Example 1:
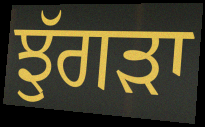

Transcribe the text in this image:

ਝੁੱਗੜਾ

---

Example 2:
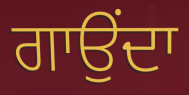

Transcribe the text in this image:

ਗਾਉਂਦਾ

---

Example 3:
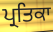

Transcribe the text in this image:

ਪ੍ਰਤਿਕਾ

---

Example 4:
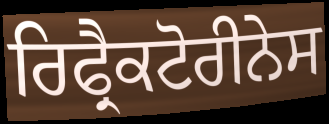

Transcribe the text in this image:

ਰਿਫ੍ਰੈਕਟੋਰੀਨੇਸ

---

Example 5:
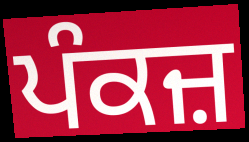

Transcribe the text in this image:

ਪੰਕਜ਼